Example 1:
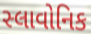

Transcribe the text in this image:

સ્લાવોનિક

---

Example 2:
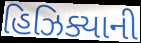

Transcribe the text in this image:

હિઝિક્યાની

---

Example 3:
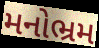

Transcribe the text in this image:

મનોભ્રમ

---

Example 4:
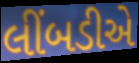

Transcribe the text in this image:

લીંબડીએ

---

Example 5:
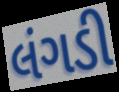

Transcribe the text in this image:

લંગડી